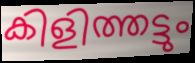
കിളിത്തട്ടും